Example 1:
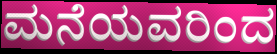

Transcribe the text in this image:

ಮನೆಯವರಿಂದ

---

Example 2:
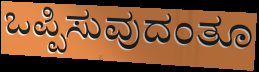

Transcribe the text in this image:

ಒಪ್ಪಿಸುವುದಂತೂ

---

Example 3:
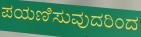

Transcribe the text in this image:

ಪಯಣಿಸುವುದರಿಂದ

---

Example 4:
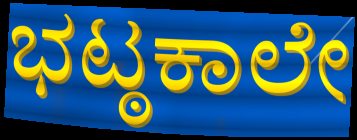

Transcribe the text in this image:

ಭಟ್ಠಕಾಲೇ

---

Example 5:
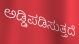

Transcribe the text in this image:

ಅಡ್ಡಿಪಡಿಸುತ್ತದೆ